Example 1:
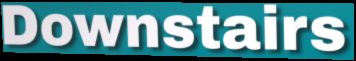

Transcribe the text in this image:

Downstairs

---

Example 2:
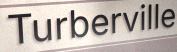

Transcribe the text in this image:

Turberville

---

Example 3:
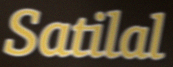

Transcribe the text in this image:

Satilal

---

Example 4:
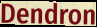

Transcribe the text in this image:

Dendron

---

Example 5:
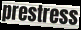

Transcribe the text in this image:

prestress